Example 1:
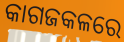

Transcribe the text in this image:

କାଗଜକଳରେ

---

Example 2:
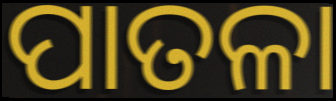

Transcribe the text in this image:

ପାତଳା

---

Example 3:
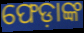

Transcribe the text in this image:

ଫେଡ଼ାଙ୍କ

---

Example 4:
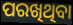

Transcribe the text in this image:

ପରଖିଥିବା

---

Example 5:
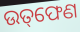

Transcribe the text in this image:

ଉତ୍‌ଫେଣ